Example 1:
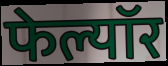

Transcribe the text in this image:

फेल्यॉर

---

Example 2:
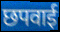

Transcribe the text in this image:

छपवाई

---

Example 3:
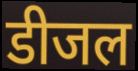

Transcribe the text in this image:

डीजल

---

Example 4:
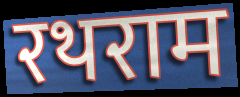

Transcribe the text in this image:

रथराम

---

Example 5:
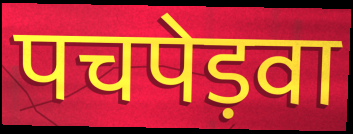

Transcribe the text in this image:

पचपेड़वा